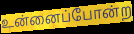
உன்னைப்போன்ற